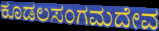
ಕೂಡಲಸಂಗಮದೇವ